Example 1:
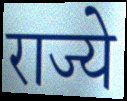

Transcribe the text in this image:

राज्ये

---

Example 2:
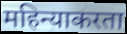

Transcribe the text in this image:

महिन्याकरता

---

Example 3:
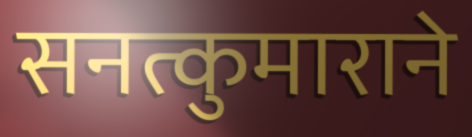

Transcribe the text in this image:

सनत्कुमाराने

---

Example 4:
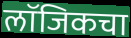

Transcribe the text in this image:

लॉजिकचा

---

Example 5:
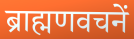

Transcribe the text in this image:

ब्राह्मणवचनें